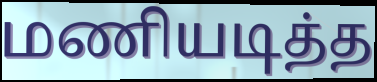
மணியடித்த